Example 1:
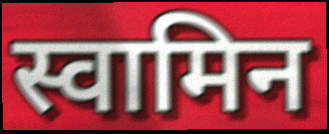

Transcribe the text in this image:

स्वामिन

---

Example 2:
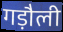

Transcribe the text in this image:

गड़ौली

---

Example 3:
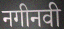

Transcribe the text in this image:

नगीनवी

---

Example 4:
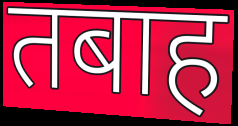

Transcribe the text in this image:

तबाह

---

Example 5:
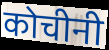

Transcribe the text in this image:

कोचीनी